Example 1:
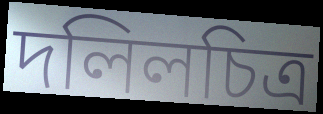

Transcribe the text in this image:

দলিলচিত্র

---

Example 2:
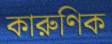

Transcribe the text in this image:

কারুণিক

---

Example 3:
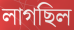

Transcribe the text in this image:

লাগছিল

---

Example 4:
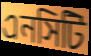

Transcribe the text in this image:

এনসিটি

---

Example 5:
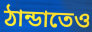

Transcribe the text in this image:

ঠান্ডাতেও